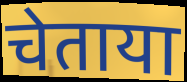
चेताया